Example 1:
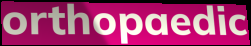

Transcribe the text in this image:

orthopaedic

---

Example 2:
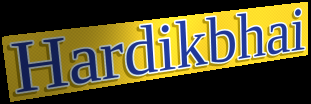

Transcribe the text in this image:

Hardikbhai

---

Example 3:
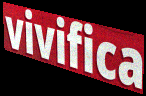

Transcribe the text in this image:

vivifica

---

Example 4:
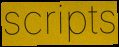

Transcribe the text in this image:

scripts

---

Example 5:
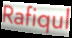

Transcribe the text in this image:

Rafiqul